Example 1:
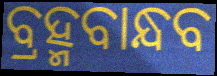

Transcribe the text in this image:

ବ୍ରହ୍ମବାନ୍ଧବ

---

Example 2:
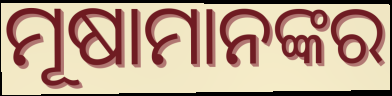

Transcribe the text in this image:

ମୂଷାମାନଙ୍କର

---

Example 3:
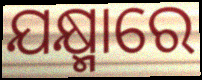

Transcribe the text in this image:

ଯକ୍ଷ୍ମାରେ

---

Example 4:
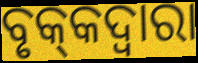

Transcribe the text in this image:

ବୃକ୍‌କଦ୍ଵାରା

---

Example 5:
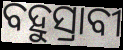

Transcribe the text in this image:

ବହୁସ୍ରାବୀ